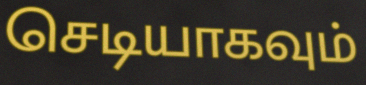
செடியாகவும்